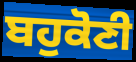
ਬਹੁਕੋਣੀ